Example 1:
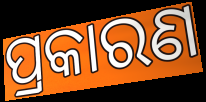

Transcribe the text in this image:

ପ୍ରକାରଣ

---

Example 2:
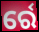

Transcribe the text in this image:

ର୍ରେ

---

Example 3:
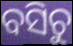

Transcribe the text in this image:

ବସିଚୁ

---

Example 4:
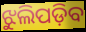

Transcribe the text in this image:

ଝୁଲିପଡ଼ିବ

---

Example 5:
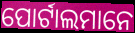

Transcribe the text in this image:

ପୋର୍ଟାଲମାନେ